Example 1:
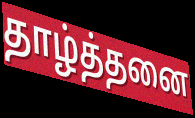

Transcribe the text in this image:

தாழ்த்தனை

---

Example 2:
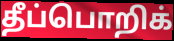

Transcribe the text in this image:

தீப்பொறிக்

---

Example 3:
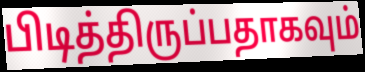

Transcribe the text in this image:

பிடித்திருப்பதாகவும்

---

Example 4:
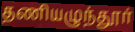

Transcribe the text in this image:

தணியழுந்தூர்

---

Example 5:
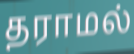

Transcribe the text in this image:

தராமல்